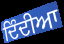
ਦਿੰਦੀਆ